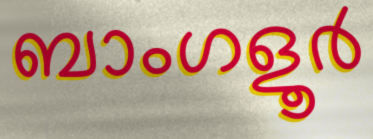
ബാംഗളൂർ